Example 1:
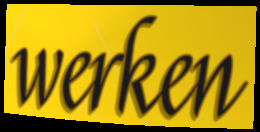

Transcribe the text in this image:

werken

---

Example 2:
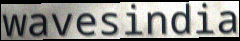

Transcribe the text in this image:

wavesindia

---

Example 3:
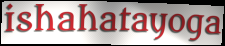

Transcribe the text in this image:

ishahatayoga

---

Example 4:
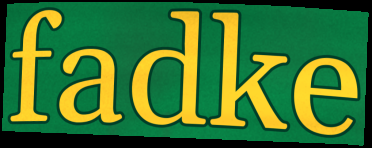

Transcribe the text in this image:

fadke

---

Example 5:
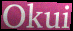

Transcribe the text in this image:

Okui